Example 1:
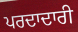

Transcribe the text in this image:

ਪਰਦਾਦਾਰੀ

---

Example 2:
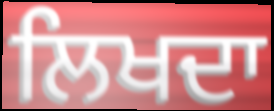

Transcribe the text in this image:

ਲਿਖਦਾ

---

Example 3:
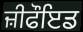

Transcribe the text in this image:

ਜ਼ੀਫੌਇਡ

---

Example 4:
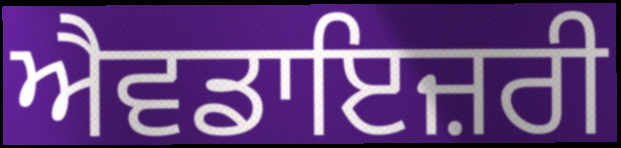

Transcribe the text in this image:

ਐਵਡਾਇਜ਼ਰੀ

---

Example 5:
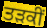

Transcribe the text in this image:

ਤੜਕੀਂ